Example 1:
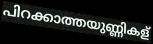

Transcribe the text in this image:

പിറക്കാത്തയുണ്ണികള്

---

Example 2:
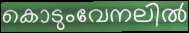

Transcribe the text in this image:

കൊടുംവേനലിൽ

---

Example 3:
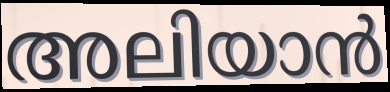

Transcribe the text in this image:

അലിയാൻ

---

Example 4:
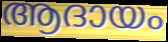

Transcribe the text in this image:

ആദായം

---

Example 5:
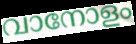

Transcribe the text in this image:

വാനോളം